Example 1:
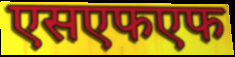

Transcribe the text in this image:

एसएफएफ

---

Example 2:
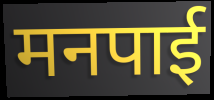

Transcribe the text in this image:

मनपाई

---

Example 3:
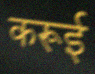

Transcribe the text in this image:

करूई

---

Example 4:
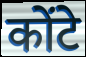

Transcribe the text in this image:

कोंटे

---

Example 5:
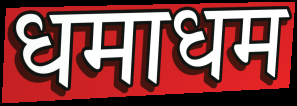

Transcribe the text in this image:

धमाधम